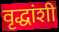
वृद्धांशी